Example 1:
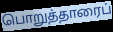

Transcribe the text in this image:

பொறுத்தாரைப்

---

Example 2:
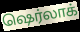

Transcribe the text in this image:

ஷெர்லாக்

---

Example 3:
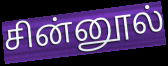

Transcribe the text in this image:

சின்னூல்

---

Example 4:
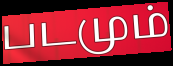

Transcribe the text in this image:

படமும்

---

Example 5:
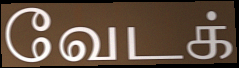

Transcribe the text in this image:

வேடக்